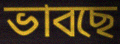
ভাবছে